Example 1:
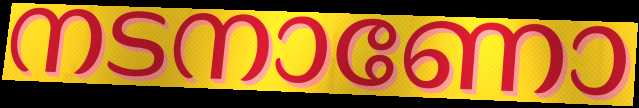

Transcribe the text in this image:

നടനാണോ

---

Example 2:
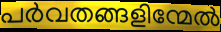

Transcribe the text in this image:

പർവതങ്ങളിന്മേൽ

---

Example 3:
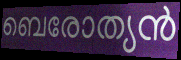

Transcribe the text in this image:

ബെരോത്യൻ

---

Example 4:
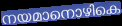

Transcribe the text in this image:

നയമാനൊഴികെ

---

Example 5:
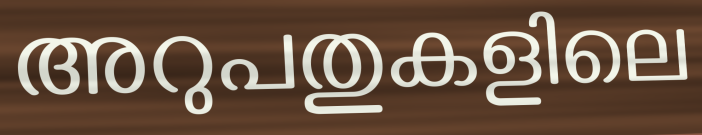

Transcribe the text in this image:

അറുപതുകളിലെ